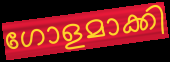
ഗോളമാക്കി